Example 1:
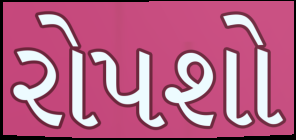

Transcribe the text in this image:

રોપશો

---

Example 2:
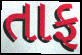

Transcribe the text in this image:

તાફ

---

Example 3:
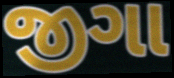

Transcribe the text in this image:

જીગા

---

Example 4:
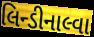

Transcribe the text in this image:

લિન્ડીનાલ્વા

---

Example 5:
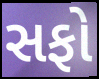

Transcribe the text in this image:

સફો